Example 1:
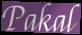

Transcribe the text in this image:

Pakal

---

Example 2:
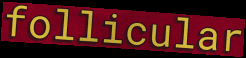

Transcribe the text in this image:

follicular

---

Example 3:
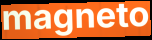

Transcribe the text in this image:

magneto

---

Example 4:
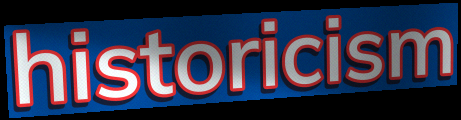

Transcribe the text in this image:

historicism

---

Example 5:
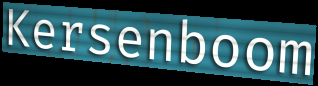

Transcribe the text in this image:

Kersenboom